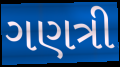
ગણત્રી